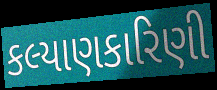
કલ્યાણકારિણી